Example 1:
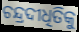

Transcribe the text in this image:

ଚନ୍ଦ୍ରଦୀଧିତିକୁ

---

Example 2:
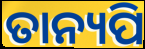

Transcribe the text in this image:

ତାନ୍ୟପି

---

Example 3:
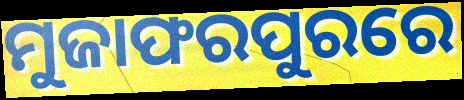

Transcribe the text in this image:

ମୁଜାଫରପୁରରେ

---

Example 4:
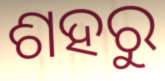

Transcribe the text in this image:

ଶହରୁ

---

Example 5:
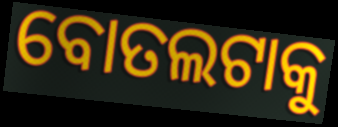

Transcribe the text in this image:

ବୋତଲଟାକୁ